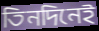
তিনদিনেই